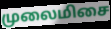
முலைமிசை